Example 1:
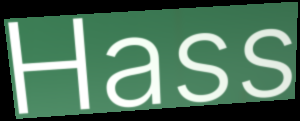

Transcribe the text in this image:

Hass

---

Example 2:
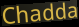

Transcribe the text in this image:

Chadda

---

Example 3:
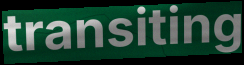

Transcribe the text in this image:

transiting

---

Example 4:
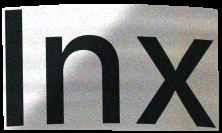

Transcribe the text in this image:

lnx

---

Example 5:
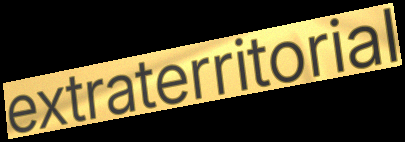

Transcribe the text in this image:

extraterritorial